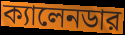
ক্যালেনডার